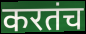
करतंच